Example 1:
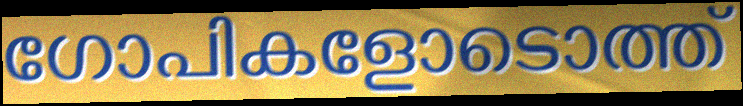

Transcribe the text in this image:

ഗോപികളോടൊത്ത്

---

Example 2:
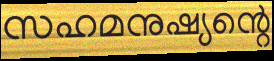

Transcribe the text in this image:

സഹമനുഷ്യന്റെ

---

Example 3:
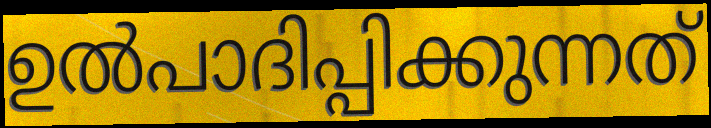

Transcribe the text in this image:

ഉൽപാദിപ്പിക്കുന്നത്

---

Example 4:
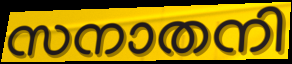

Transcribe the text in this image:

സനാതനി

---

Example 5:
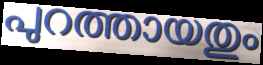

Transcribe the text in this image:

പുറത്തായതും